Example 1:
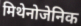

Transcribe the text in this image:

मिथेनोजेनिक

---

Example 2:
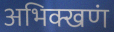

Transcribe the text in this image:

अभिक्खणं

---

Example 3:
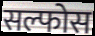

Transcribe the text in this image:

सल्फोस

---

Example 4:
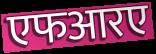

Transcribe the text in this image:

एफआरए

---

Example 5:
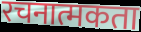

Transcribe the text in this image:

रचनात्मकता